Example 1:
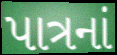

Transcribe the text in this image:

પાત્રનાં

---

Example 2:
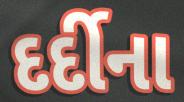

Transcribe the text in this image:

દર્દીના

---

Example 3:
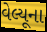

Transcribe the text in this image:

વેલ્યૂના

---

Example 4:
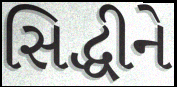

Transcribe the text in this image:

સિદ્ધીને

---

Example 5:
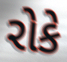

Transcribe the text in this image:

રોકે